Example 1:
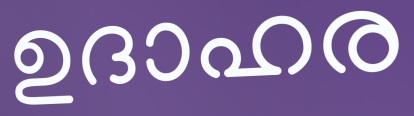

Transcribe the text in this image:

ഉദാഹര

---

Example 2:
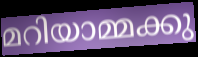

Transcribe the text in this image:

മറിയാമ്മക്കു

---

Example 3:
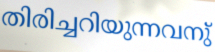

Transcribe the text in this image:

തിരിച്ചറിയുന്നവനു്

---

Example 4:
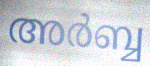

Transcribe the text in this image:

അർബ്ബ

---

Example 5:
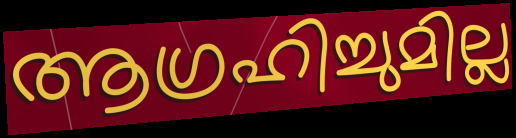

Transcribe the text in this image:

ആഗ്രഹിച്ചുമില്ല